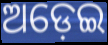
ଅଡ଼େଇ